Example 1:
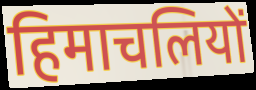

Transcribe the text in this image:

हिमाचलियों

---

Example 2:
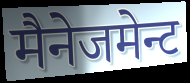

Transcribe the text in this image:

मैनेजमेन्ट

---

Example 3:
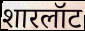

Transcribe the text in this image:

शारलॉट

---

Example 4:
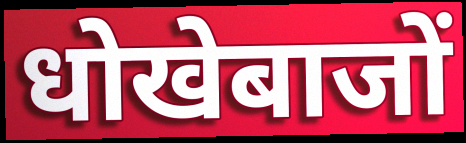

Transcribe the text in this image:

धोखेबाजों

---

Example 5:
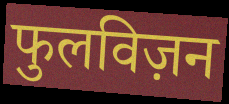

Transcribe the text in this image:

फुलविज़न